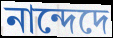
নান্দেদে